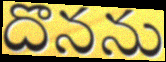
దొనను